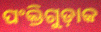
ପଂକ୍ତିଗୁଡ଼ାକ